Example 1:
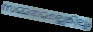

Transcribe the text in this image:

സമ്മതമല്ലെങ്കിലും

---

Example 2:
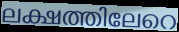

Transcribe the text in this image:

ലക്ഷത്തിലേറെ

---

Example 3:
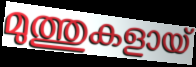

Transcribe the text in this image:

മുത്തുകളായ്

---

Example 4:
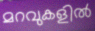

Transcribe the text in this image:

മറവുകളിൽ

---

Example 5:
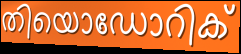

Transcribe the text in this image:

തിയൊഡോറിക്